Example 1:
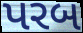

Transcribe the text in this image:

પરબ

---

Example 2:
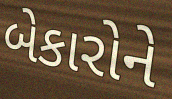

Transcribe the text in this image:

બેકારોને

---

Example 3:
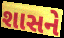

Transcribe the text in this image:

શાસને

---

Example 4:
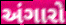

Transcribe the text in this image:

અંગારો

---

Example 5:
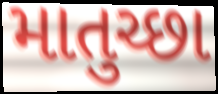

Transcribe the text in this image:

માતુચ્છા